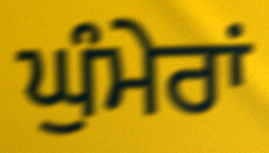
ਘੁੰਮੇਰਾਂ